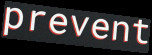
prevent